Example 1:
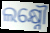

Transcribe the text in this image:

ଲକ୍ଷ୍ନୌ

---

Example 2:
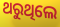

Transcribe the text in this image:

ଥରୁଥିଲେ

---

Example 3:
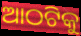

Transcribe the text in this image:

ଆଠଟିକୁ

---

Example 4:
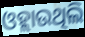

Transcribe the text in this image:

ଓହ୍ଲାଉଥିଲି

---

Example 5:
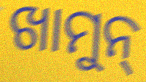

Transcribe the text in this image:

ଖାମୁନ୍